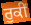
ਰੁਕੀਂ